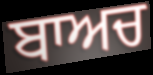
ਬਾਅਚ